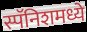
स्पॅनिशमध्ये